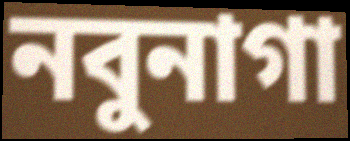
নবুনাগা